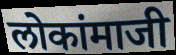
लोकांमाजी